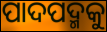
ପାଦପଦ୍ମକୁ